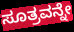
ಸೂತ್ರವನ್ನೇ